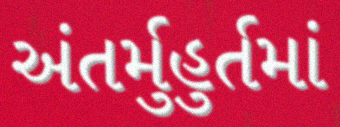
અંતર્મુહુર્તમાં